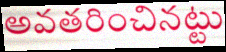
అవతరించినట్టు